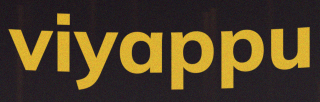
viyappu